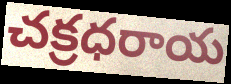
చక్రధరాయ